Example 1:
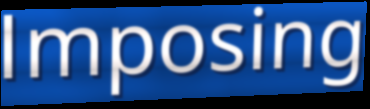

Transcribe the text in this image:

Imposing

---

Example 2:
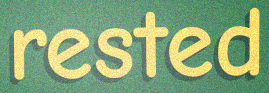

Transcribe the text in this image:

rested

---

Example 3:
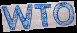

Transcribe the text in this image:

WTO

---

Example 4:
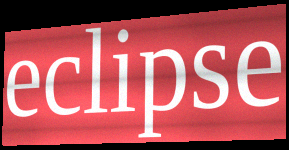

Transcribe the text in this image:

eclipse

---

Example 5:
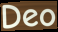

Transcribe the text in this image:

Deo